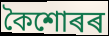
কৈশোৰৰ